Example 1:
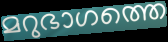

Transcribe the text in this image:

മറുഭാഗത്തെ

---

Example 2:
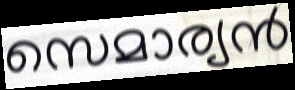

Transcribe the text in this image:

സെമാര്യൻ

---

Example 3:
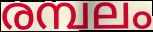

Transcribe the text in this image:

രമ്പലം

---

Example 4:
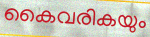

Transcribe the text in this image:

കൈവരികയും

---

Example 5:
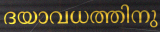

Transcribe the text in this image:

ദയാവധത്തിനു